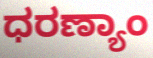
ಧರಣ್ಯಾಂ